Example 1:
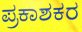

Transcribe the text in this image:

ಪ್ರಕಾಶಕರ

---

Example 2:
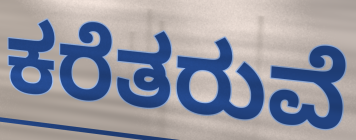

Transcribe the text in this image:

ಕರೆತರುವೆ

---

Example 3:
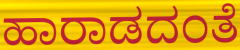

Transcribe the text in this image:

ಹಾರಾಡದಂತೆ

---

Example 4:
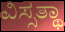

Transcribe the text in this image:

ವಿಸ್ಸತ್ಥಾ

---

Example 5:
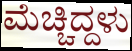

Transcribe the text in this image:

ಮೆಚ್ಚಿದ್ದಳು